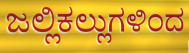
ಜಲ್ಲಿಕಲ್ಲುಗಳಿಂದ